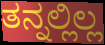
ತನ್ನಲ್ಲಿಲ್ಲ